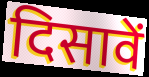
दिसावें